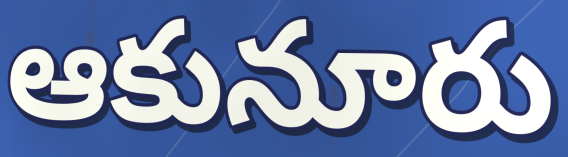
ఆకునూరు